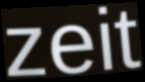
zeit